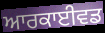
ਆਰਕਾਈਵਡ